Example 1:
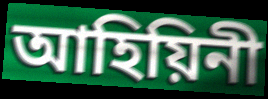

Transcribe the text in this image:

আহিয়িনী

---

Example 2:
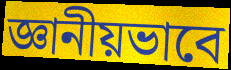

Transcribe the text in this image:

জ্ঞানীয়ভাবে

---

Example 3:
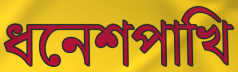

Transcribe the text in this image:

ধনেশপাখি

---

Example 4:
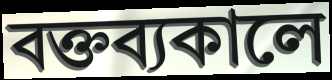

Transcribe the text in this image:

বক্তব্যকালে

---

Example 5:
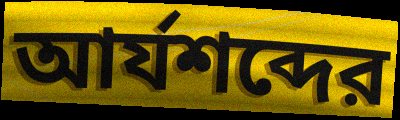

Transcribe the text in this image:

আর্যশব্দের